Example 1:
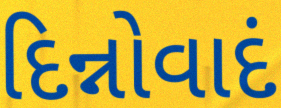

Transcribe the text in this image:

દિન્નોવાદં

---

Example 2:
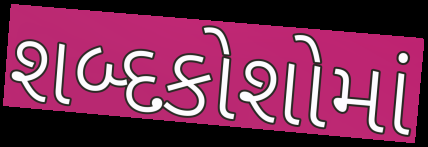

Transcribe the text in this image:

શબ્દકોશોમાં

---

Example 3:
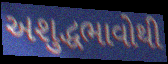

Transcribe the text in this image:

અશુદ્ધભાવોથી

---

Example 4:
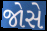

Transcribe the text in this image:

જોસે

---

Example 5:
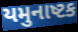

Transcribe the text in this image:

યમુનાષ્ટક